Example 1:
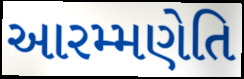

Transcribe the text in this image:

આરમ્મણેતિ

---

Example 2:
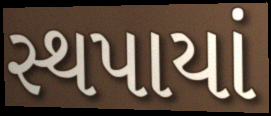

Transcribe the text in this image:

સ્થપાયાં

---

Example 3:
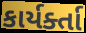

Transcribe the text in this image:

કાર્યર્ક્તા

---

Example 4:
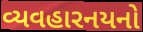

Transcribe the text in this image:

વ્યવહારનયનો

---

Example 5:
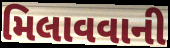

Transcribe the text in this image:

મિલાવવાની